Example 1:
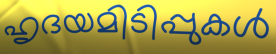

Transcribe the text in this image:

ഹൃദയമിടിപ്പുകൾ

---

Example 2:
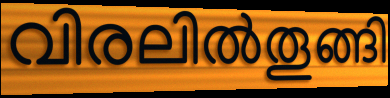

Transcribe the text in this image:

വിരലിൽതൂങ്ങി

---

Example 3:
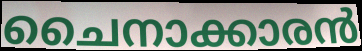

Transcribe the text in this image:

ചൈനാക്കാരൻ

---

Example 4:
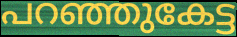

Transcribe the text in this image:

പറഞ്ഞുകേട്ട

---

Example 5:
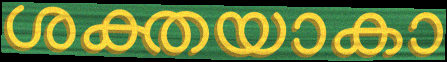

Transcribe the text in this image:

ശക്തയാകാ